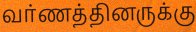
வர்ணத்தினருக்கு